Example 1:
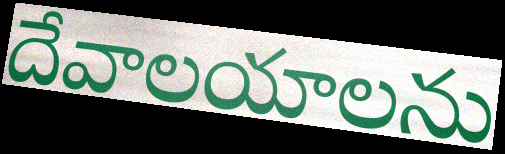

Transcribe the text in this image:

దేవాలయాలను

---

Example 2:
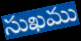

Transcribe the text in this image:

సుఖము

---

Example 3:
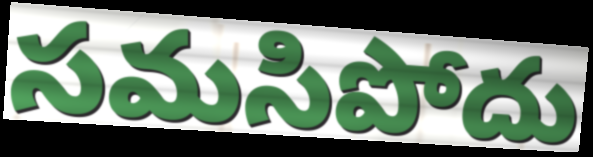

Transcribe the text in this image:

సమసిపోదు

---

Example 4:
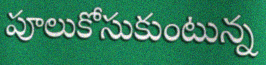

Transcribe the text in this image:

పూలుకోసుకుంటున్న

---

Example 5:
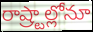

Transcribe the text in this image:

రాష్ర్టాల్లోనూ